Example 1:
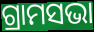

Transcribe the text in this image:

ଗ୍ରାମସଭା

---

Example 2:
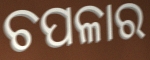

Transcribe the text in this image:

ଚପଳାର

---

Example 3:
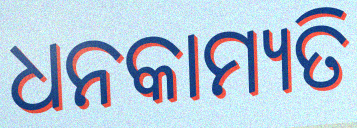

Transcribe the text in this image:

ଧନକାମ୍ୟତି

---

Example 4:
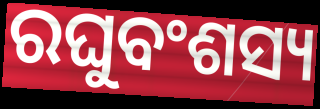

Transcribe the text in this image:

ରଘୁବଂଶସ୍ୟ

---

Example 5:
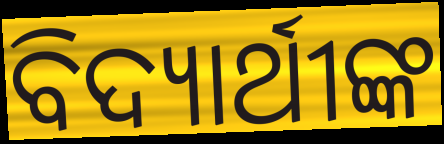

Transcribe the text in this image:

ବିଦ୍ୟାର୍ଥୀଙ୍କ